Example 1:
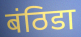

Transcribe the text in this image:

बंठिडा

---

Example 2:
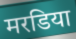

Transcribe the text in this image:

मरडिया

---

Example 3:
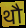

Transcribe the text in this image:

थौ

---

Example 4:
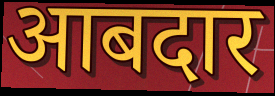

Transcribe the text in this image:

आबदार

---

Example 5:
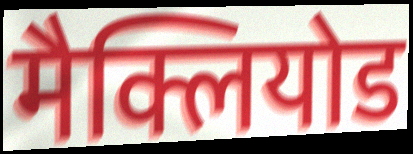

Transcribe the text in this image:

मैक्लियोड